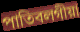
পাতিবলগীয়া